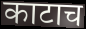
काटाच